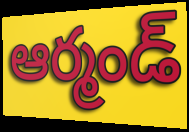
ఆర్మండ్